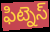
ఫిట్నెస్